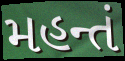
મહન્તં